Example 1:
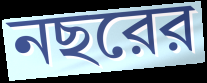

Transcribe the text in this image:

নছরের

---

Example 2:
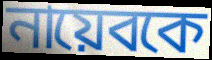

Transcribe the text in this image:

নায়েবকে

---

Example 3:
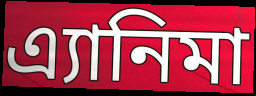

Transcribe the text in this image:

এ্যানিমা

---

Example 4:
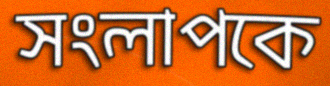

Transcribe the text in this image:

সংলাপকে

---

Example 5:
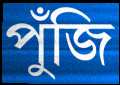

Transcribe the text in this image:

পুঁজি